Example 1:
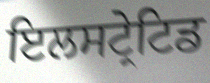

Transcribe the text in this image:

ਇਲਸਟ੍ਰੇਟਿਡ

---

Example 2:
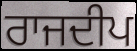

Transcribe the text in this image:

ਰਾਜਦੀਪ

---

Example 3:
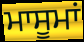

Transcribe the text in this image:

ਮਾਸੂਮਾਂ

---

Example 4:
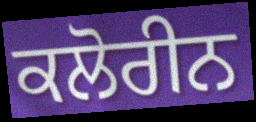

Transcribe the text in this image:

ਕਲੋਰੀਨ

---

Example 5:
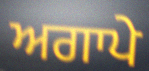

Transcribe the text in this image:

ਅਗਾਪੇ